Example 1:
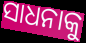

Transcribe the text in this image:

ସାଧନାକୁ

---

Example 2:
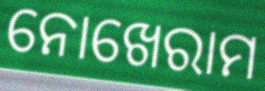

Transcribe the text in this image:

ନୋଖେରାମ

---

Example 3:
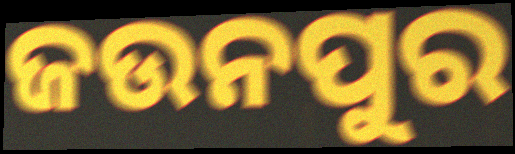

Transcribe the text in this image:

ଜଉନପୁର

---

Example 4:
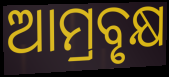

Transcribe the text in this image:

ଆମ୍ରବୃକ୍ଷ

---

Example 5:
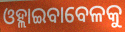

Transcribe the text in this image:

ଓହ୍ଲାଇବାବେଳକୁ